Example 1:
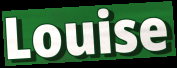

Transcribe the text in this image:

Louise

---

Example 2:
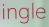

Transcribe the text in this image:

ingle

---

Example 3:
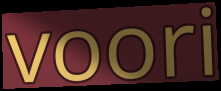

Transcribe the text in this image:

voori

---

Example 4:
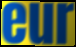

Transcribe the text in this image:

eur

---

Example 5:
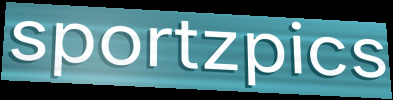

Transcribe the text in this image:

sportzpics